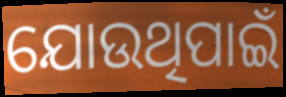
ଯୋଉଥିପାଇଁ